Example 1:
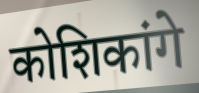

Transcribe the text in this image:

कोशिकांगे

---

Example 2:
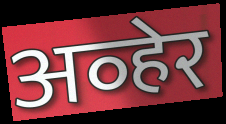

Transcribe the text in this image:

अव्हेर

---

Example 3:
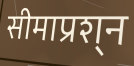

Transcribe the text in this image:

सीमाप्रश्न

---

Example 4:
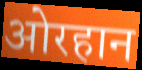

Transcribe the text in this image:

ओरहान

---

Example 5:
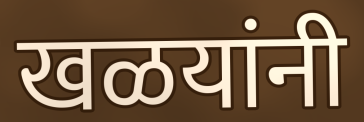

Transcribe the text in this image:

खळयांनी